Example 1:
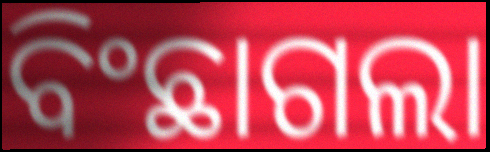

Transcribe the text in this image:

ବିଂଛାଗଲା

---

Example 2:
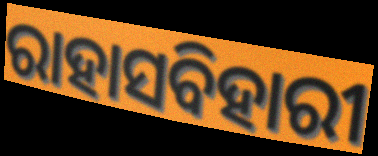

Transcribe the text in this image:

ରାହାସବିହାରୀ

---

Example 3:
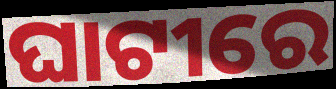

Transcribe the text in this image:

ଘାଟୀରେ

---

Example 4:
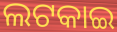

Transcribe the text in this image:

ଲଟକାଇ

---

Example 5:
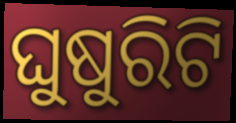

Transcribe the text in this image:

ଘୁଷୁରିଟି